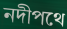
নদীপথে